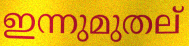
ഇന്നുമുതല്